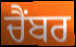
ਚੈਂਬਰ